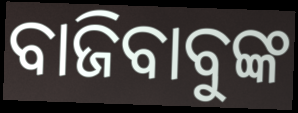
ବାଜିବାବୁଙ୍କ